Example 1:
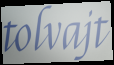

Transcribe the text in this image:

tolvajt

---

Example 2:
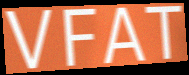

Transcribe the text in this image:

VFAT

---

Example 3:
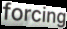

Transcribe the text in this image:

forcing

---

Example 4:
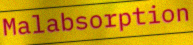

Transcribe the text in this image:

Malabsorption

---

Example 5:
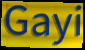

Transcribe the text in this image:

Gayi